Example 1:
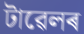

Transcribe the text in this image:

টাৱেলৰ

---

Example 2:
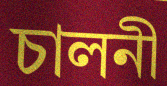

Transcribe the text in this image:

চালনী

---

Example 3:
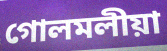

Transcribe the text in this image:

গোলমলীয়া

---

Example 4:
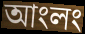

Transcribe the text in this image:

আংলং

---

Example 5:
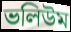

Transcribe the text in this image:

ভলিউম